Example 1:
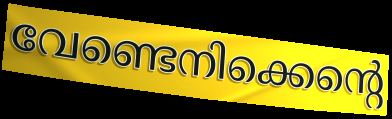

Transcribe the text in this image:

വേണ്ടെനിക്കെന്റെ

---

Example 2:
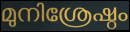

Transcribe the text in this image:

മുനിശ്രേഷ്ഠം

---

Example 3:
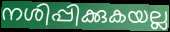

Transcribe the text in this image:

നശിപ്പിക്കുകയല്ല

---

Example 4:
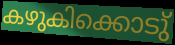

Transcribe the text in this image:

കഴുകിക്കൊടു്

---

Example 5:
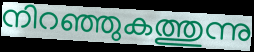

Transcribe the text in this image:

നിറഞ്ഞുകത്തുന്നു